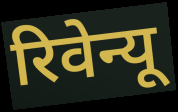
रिवेन्यू